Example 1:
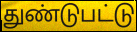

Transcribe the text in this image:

துண்டுபட்டு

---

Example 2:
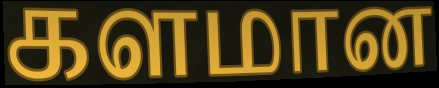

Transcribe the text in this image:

களமான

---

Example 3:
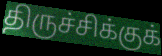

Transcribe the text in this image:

திருச்சிக்குக்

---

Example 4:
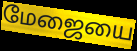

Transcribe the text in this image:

மேஜையை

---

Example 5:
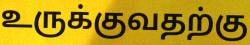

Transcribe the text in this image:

உருக்குவதற்கு